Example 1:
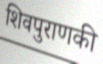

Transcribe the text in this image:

शिवपुराणकी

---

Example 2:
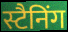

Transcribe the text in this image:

स्टैनिंग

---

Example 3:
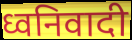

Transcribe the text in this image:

ध्वनिवादी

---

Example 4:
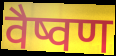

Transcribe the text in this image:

वैष्वण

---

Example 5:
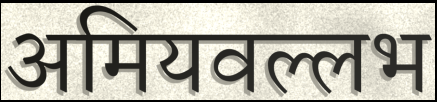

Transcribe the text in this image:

अमियवल्लभ